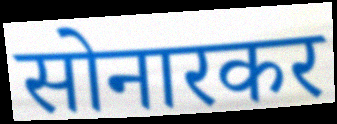
सोनारकर